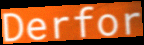
Derfor